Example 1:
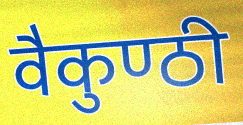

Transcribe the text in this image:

वैकुण्ठी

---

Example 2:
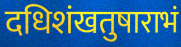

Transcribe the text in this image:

दधिशंखतुषाराभं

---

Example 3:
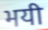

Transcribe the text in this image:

भयी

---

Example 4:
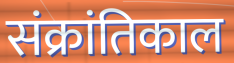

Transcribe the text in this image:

संक्रांतिकाल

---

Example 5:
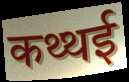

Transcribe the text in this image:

कथ्थई